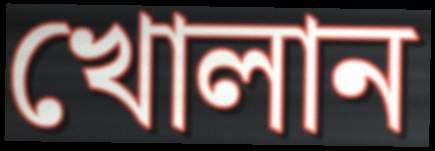
খোলান